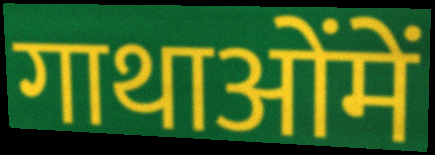
गाथाओंमें